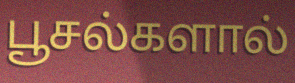
பூசல்களால்